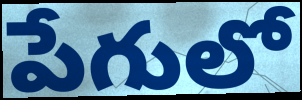
పేగులో